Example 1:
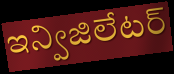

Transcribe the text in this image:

ఇన్విజిలేటర్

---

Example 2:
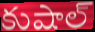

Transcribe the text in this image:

కుషాల్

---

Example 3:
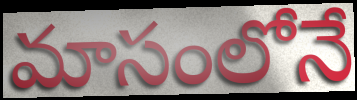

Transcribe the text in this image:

మాసంలోనే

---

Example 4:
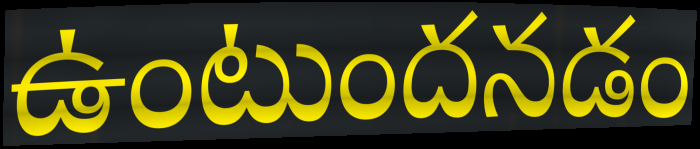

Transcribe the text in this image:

ఉంటుందనడం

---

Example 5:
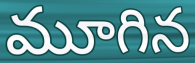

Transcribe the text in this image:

మూగిన